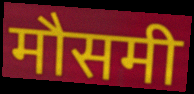
मौसमी